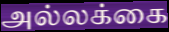
அல்லக்கை